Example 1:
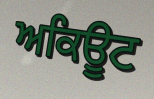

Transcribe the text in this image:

ਅਕਿਊਟ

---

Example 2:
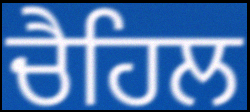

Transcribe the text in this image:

ਚੈਹਿਲ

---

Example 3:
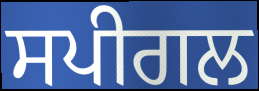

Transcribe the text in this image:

ਸਪੀਗਲ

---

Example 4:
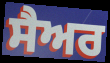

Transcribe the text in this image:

ਸੈਅਰ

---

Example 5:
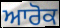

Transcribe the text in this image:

ਆਰੋਕ